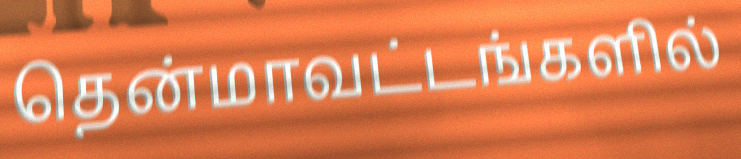
தென்மாவட்டங்களில்